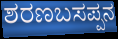
ಶರಣಬಸಪ್ಪನ